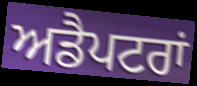
ਅਡੈਪਟਰਾਂ